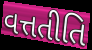
વત્તતીતિ